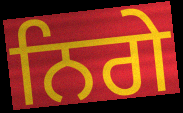
ਨਿਗੇ